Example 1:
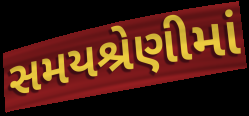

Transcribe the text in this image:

સમયશ્રેણીમાં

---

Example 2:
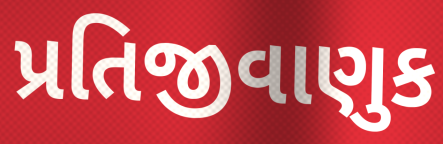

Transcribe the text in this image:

પ્રતિજીવાણુક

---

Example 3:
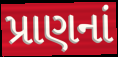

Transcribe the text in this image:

પ્રાણનાં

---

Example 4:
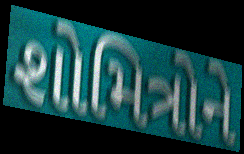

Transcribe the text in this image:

શોમિત્રોને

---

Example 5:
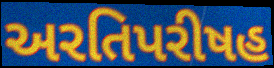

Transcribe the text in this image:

અરતિપરીષહ